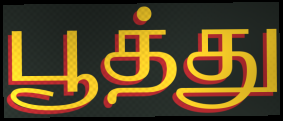
பூத்து